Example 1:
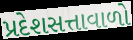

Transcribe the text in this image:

પ્રદેશસત્તાવાળો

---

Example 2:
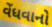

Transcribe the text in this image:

વેંધવાનો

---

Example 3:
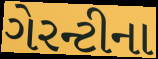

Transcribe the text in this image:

ગેરન્ટીના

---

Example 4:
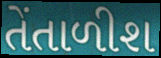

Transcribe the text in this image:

તેંતાળીશ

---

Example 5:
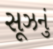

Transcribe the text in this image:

સૂઝનું